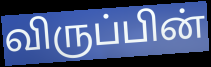
விருப்பின்